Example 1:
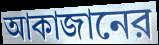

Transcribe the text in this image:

আকাজানের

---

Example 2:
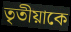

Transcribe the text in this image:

তৃতীয়াকে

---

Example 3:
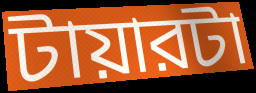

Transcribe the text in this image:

টায়ারটা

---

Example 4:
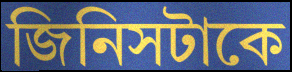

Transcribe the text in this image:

জিনিসটাকে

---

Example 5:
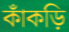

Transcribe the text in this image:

কাঁকড়ি